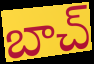
బాచ్